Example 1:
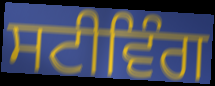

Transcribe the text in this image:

ਸਟੀਵਿੰਗ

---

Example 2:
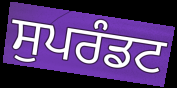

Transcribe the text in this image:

ਸੁਪਰੰਡਟ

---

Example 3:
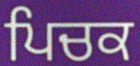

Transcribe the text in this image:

ਪਿਚਕ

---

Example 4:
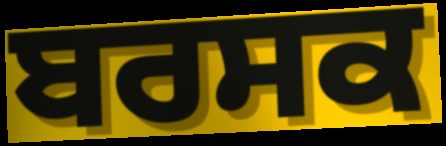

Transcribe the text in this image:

ਬਰਸਕ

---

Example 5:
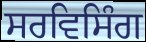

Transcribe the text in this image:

ਸਰਵਿਸਿੰਗ